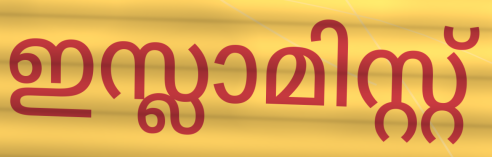
ഇസ്ലാമിസ്റ്റ്